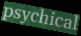
psychical